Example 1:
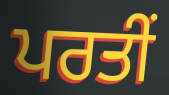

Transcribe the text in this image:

ਪਰਤੀਂ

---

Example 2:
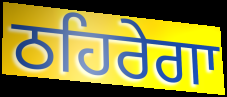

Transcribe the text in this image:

ਠਹਿਰੇਗਾ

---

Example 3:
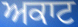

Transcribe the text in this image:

ਅਕਾਟ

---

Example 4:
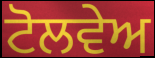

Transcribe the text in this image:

ਟੋਲਵੇਅ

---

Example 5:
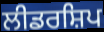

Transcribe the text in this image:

ਲੀਡਰਸ਼ਿਪ